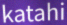
katahi